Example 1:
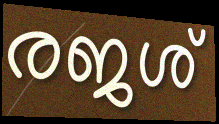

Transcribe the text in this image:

രജശ്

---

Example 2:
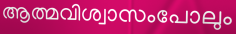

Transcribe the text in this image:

ആത്മവിശ്വാസംപോലും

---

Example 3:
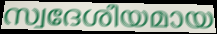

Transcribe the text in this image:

സ്വദേശീയമായ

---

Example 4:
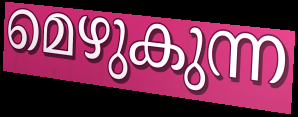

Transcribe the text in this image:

മെഴുകുന്ന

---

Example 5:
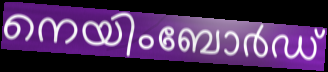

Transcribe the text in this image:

നെയിംബോർഡ്